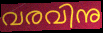
വരവിനു